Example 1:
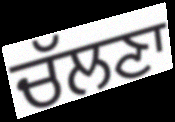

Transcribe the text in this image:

ਚੱਲਣਾ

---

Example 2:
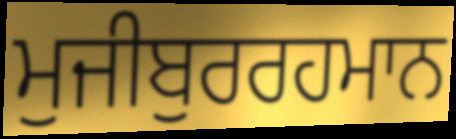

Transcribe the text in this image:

ਮੁਜੀਬੁਰਰਹਮਾਨ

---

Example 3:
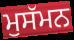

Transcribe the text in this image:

ਮੁਸੱਮਨ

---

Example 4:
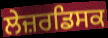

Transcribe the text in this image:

ਲੇਜ਼ਰਡਿਸਕ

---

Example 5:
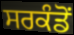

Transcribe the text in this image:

ਸਰਕੰਡੋਂ